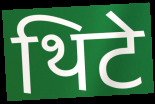
थिटे